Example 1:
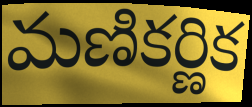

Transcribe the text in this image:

మణికర్ణిక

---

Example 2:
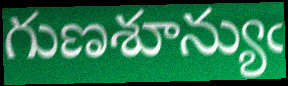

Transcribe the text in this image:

గుణశూన్యుఁ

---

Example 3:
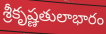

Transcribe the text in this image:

శ్రీకృష్ణతులాభారం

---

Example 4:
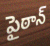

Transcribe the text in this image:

పైఠాన్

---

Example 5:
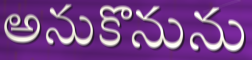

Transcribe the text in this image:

అనుకొనును